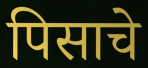
पिसाचे